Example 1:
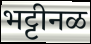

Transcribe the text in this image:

भट्टीनळ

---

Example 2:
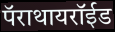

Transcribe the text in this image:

पॅराथायरॉईड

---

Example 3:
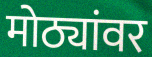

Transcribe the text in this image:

मोठ्यांवर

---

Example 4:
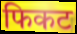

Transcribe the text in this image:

फिकट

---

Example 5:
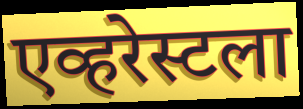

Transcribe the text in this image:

एव्हरेस्टला